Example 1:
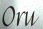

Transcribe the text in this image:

Oru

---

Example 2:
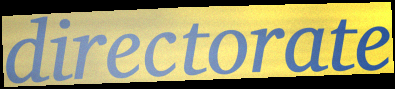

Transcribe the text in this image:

directorate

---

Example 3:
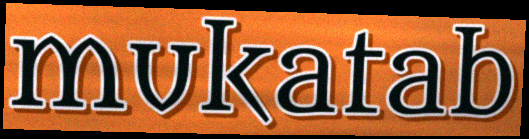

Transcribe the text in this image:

mukatab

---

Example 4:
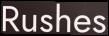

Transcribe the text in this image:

Rushes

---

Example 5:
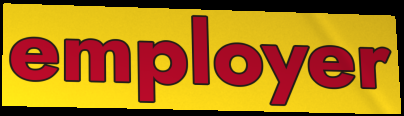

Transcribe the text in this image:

employer